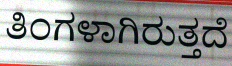
ತಿಂಗಳಾಗಿರುತ್ತದೆ